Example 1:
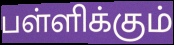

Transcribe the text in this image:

பள்ளிக்கும்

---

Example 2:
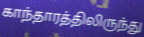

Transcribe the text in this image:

காந்தாரத்திலிருந்து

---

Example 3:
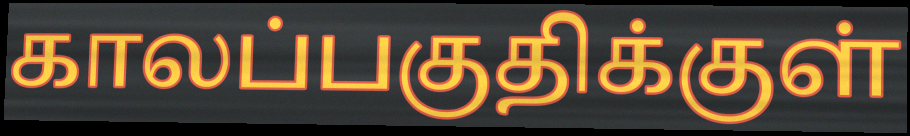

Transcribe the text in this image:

காலப்பகுதிக்குள்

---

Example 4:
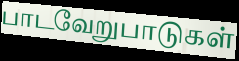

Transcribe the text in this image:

பாடவேறுபாடுகள்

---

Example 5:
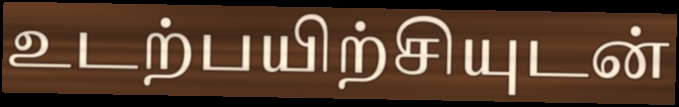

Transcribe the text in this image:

உடற்பயிற்சியுடன்